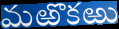
మఱొకఱు